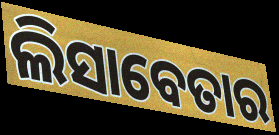
ଲିସାବେତାର